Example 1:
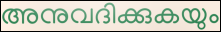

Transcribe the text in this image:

അനുവദിക്കുകയും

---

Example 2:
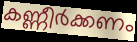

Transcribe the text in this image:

കണ്ണീർക്കണം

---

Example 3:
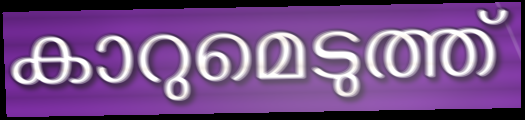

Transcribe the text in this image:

കാറുമെടുത്ത്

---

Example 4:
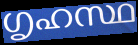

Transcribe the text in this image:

ഗൃഹസ്ഥ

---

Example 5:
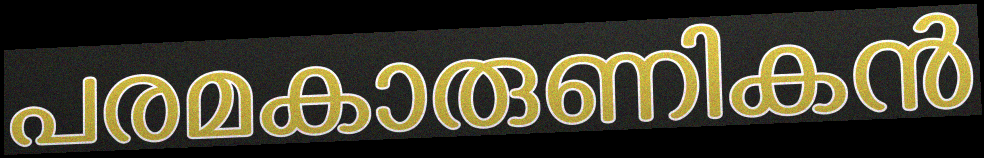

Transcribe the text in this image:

പരമകാരുണികൻ